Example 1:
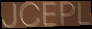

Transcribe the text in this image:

JCEPL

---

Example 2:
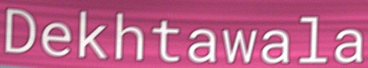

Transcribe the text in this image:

Dekhtawala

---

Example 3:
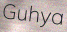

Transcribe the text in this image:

Guhya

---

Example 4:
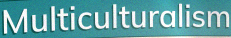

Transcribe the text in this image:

Multiculturalism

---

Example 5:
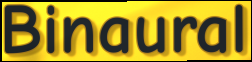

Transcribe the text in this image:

Binaural